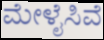
ಮೇಳೈಸಿವೆ